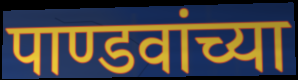
पाण्डवांच्या